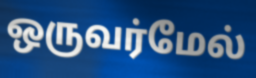
ஒருவர்மேல்